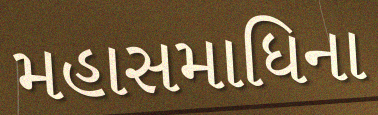
મહાસમાધિના